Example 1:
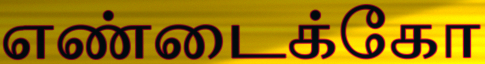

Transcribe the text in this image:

எண்டைக்கோ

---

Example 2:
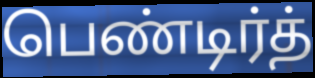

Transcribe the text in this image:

பெண்டிர்த்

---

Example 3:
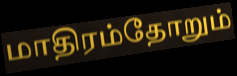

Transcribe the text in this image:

மாதிரம்தோறும்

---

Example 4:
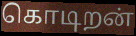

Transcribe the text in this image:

கொடிறன்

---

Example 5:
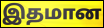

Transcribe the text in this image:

இதமான